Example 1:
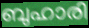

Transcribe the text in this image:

ബുഹാരി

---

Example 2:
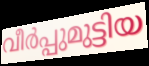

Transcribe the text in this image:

വീർപ്പുമുട്ടിയ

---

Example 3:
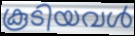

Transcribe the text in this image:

കൂടിയവൾ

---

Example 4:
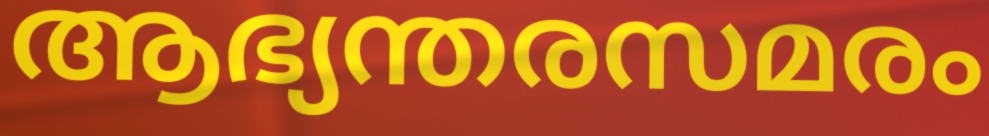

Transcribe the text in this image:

ആഭ്യന്തരസമരം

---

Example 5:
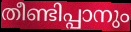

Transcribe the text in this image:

തീണ്ടിപ്പാനും